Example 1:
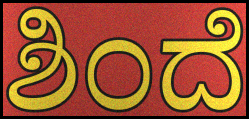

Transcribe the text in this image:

ಶಿಂದೆ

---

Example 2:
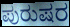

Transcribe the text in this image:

ಪುರುಷರ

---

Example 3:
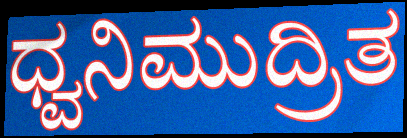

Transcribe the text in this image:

ಧ್ವನಿಮುದ್ರಿತ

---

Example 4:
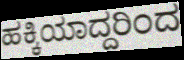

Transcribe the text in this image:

ಹಕ್ಕಿಯಾದ್ದರಿಂದ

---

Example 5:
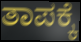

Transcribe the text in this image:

ತಾಪಕ್ಕೆ